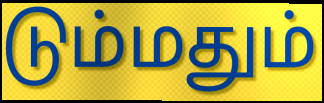
டும்மதும்